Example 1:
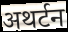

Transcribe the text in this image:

अथर्टन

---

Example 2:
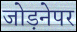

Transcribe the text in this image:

जोड़नेपर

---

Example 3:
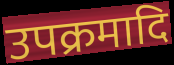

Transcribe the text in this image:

उपक्रमादि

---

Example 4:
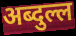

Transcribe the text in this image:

अब्दुल्ल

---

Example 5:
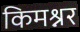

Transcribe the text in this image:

किमश्नर